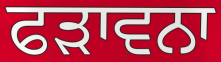
ਫੜਾਵਨਾ